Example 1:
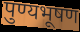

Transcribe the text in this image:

पुण्यभूषण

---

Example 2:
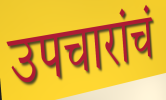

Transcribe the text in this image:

उपचारांचं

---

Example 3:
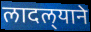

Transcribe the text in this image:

लादल्याने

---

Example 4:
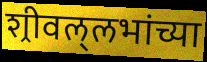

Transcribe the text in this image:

श्रीवल्लभांच्या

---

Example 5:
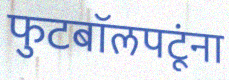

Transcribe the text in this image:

फुटबॉलपटूंना